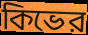
কিভের